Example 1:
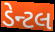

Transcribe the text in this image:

ડેન્ટલ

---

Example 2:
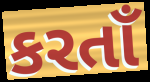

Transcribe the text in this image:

કરતાઁ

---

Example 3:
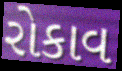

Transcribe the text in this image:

રોકાવ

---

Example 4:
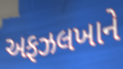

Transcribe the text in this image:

અફઝલખાને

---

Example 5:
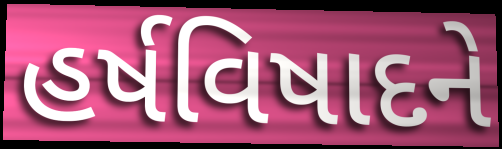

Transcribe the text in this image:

હર્ષવિષાદને